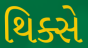
થિક્સે